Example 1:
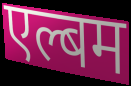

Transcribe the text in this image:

एल्बम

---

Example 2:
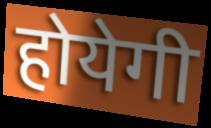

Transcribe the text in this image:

होयेगी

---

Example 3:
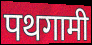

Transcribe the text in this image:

पथगामी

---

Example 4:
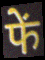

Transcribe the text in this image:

फें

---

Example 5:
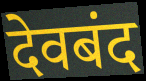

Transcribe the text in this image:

देवबंद